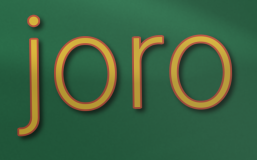
joro